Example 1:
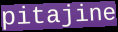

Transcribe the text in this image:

pitajine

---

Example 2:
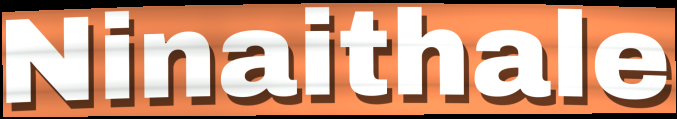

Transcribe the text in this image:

Ninaithale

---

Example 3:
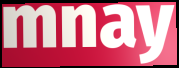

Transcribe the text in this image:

mnay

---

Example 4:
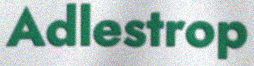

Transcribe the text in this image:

Adlestrop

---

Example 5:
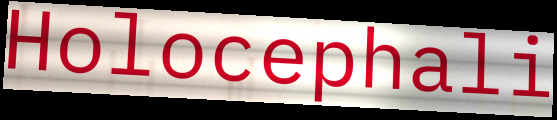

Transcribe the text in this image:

Holocephali